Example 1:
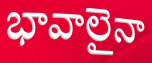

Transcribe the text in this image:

భావాలైనా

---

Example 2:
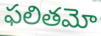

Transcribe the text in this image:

ఫలితమో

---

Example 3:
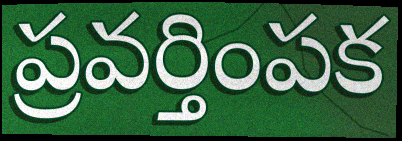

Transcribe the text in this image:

ప్రవర్తింపక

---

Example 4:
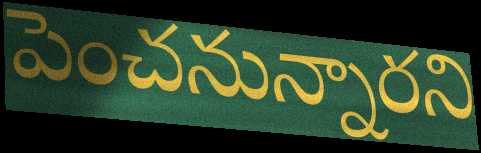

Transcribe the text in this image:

పెంచనున్నారని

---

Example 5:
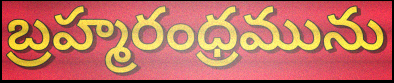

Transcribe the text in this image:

బ్రహ్మరంధ్రమును